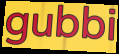
gubbi